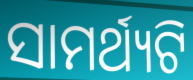
ସାମର୍ଥ୍ୟଟି